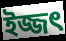
ইজ্জৎ